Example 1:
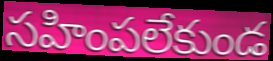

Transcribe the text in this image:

సహింపలేకుండ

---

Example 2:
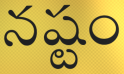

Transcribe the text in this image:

నష్టం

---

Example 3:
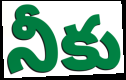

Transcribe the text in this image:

నీకు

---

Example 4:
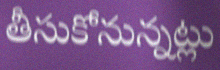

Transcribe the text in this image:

తీసుకోనున్నట్లు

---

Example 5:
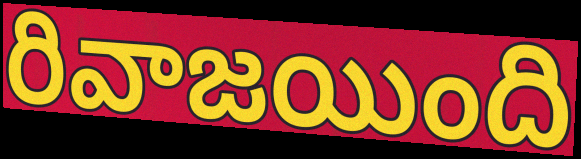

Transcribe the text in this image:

రివాజయింది